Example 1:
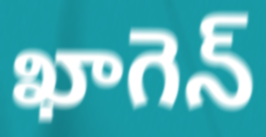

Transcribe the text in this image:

ఖాగెన్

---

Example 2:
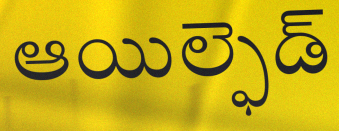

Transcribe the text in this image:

ఆయిల్ఫెడ్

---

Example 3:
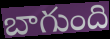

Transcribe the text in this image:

బాగుంది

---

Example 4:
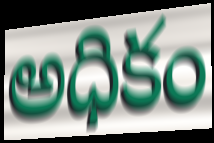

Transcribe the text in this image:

అధికం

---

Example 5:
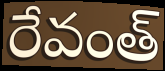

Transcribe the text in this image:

రేవంత్